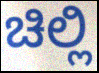
ಚಿಲ್ಲಿ